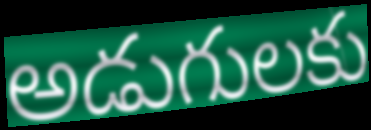
అడుగులకు